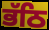
ਭੱਠਿ